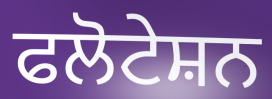
ਫਲੋਟੇਸ਼ਨ